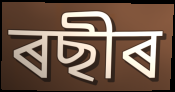
ৰছীৰ